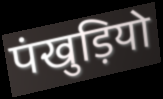
पंखुड़ियो